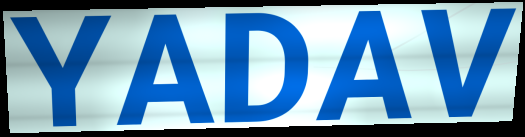
YADAV